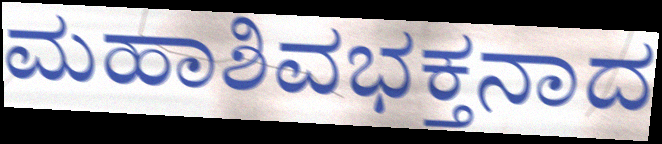
ಮಹಾಶಿವಭಕ್ತನಾದ